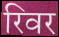
रिवर